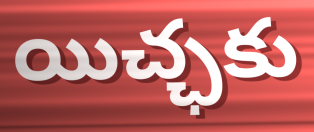
యిచ్ఛకు